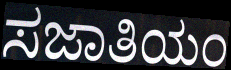
ಸಜಾತಿಯಂ